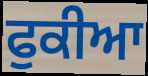
ਫੁਕੀਆ